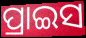
ପ୍ରାଇସ